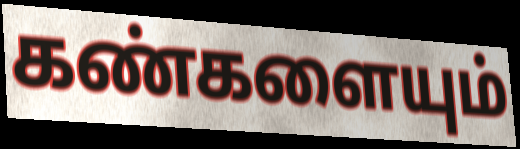
கண்களையும்